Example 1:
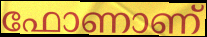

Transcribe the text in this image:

ഫോണാണ്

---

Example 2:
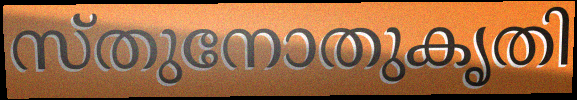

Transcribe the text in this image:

സ്തുനോതുകൃതി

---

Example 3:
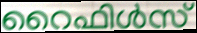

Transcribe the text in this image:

റൈഫിൾസ്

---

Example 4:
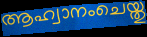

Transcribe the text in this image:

ആഹ്വാനംചെയ്തു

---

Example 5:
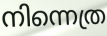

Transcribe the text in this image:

നിന്നെത്ര